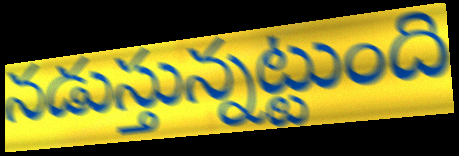
నడుస్తున్నట్టుంది